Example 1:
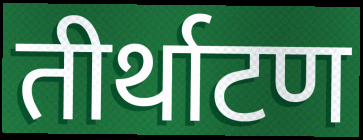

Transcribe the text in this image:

तीर्थाटण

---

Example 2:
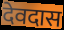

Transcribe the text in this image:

देवदास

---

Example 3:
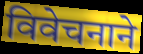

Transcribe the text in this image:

विवेचनाने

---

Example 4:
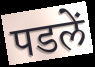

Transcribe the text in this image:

पडलें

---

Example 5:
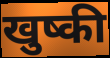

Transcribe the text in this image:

खुष्की